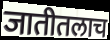
जातीतलाच